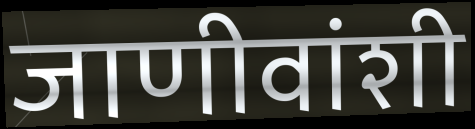
जाणीवांशी